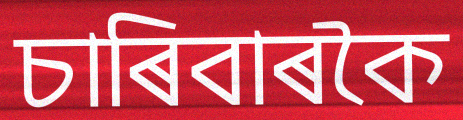
চাৰিবাৰকৈ